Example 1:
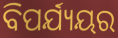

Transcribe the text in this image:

ବିପର୍ଯ୍ଯୟର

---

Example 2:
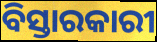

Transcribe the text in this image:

ବିସ୍ତାରକାରୀ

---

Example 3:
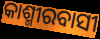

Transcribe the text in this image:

କାଶ୍ମୀରବାସୀ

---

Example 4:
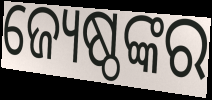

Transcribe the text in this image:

ଜ୍ୟେଷ୍ଠଙ୍କର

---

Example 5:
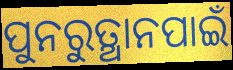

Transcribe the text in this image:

ପୁନରୁତ୍ଥାନପାଇଁ